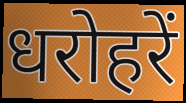
धरोहरें